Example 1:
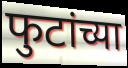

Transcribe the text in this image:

फुटांच्या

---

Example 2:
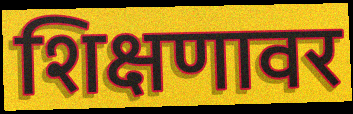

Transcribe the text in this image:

शिक्षणावर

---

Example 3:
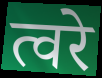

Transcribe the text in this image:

त्वरे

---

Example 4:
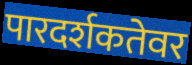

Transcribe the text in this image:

पारदर्शकतेवर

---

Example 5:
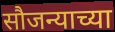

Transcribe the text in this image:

सौजन्याच्या